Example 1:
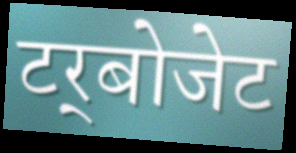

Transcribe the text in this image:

टर्बोजेट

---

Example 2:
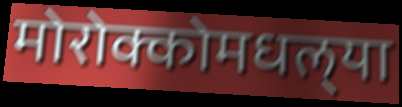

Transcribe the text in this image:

मोरोक्कोमधल्या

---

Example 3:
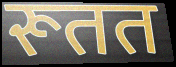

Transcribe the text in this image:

रूतत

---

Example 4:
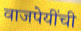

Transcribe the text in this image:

वाजपेयींची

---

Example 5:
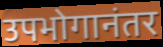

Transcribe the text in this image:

उपभोगानंतर